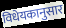
विधेयकानुसार